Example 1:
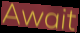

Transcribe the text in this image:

Await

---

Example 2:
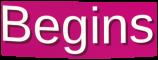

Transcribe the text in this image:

Begins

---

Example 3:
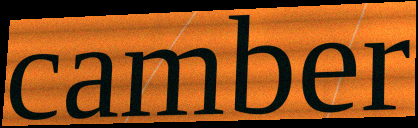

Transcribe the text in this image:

camber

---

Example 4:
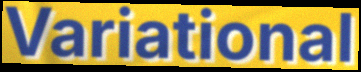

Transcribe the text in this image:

Variational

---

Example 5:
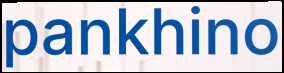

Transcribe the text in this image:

pankhino